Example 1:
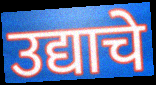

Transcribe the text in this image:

उद्याचे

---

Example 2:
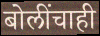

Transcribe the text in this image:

बोलींचाही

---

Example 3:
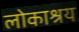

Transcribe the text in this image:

लोकाश्रय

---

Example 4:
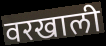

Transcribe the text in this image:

वरखाली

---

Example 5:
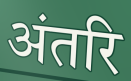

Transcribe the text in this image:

अंतरि